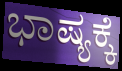
ಭಾಷ್ಯಕ್ಕೆ